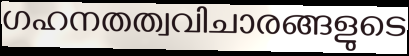
ഗഹനതത്വവിചാരങ്ങളുടെ